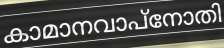
കാമാനവാപ്നോതി